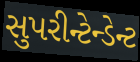
સુપરીન્ટેન્ડેન્ટ